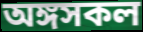
অঙ্গসকল